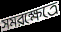
সমরক্ষেত্রে